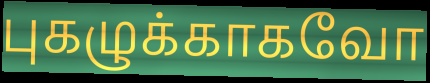
புகழுக்காகவோ